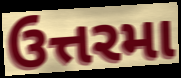
ઉત્તરમા